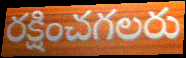
రక్షించగలరు